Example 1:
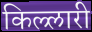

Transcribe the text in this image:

किल्लारी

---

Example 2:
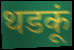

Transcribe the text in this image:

थडकूं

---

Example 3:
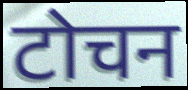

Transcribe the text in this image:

टोचन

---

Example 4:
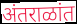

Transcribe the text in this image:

अंतराळांत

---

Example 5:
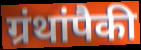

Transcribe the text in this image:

ग्रंथांपैकी